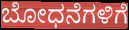
ಬೋಧನೆಗಳಿಗೆ